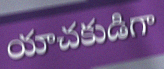
యాచకుడిగా